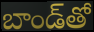
బాండ్‌తో